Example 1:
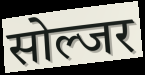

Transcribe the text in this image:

सोल्जर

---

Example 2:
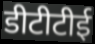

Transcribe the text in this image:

डीटीटीई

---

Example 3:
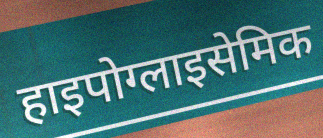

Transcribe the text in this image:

हाइपोग्लाइसेमिक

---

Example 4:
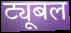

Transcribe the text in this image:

ट्यूबल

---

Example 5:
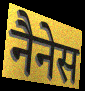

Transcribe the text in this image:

नैनेस